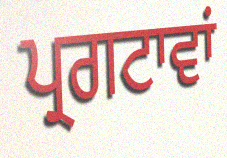
ਪ੍ਰਗਟਾਵਾਂ